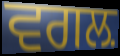
ਵਗਲ਼